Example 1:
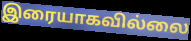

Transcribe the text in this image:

இரையாகவில்லை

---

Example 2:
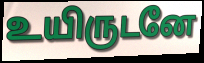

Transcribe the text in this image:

உயிருடனே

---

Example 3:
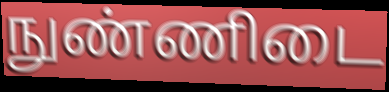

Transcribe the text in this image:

நுண்ணிடை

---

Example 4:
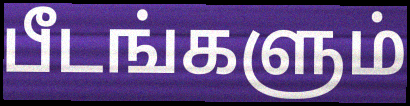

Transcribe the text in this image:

பீடங்களும்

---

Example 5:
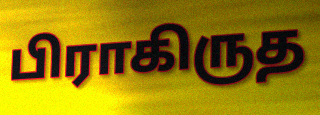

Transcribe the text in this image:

பிராகிருத